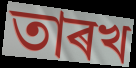
তাৰখ